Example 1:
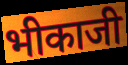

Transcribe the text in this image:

भीकाजी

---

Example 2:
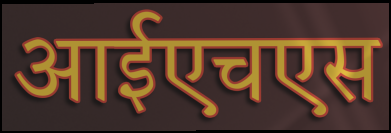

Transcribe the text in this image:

आईएचएस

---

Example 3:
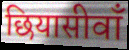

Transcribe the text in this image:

छियासीवाँ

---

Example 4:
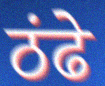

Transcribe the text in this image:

ठंढे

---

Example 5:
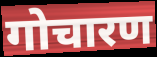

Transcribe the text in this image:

गोचारण